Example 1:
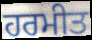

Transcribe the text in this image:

ਹਰਮੀਤ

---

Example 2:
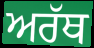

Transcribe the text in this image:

ਅਰੱਥ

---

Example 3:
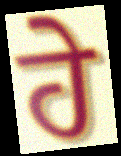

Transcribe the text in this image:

ਹੇ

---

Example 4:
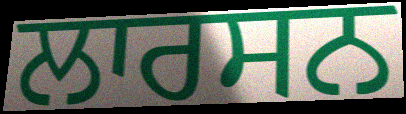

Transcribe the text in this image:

ਲਾਰਸਨ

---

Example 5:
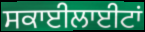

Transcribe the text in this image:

ਸਕਾਈਲਾਈਟਾਂ